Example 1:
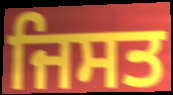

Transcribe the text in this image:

ਜਿਸਤ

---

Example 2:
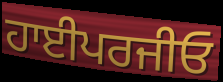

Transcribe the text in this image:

ਹਾਈਪਰਜੀਓ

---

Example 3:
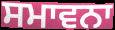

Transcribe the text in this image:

ਸਮਾਵਨਾ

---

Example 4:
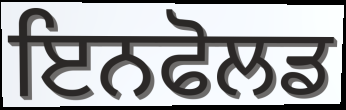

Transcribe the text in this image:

ਇਨਫੋਲਡ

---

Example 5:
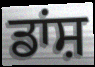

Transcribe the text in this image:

ਡਾਂਸ਼